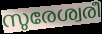
സുരേശ്വരീ